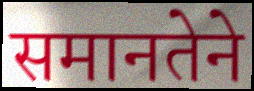
समानतेने